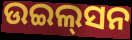
ଉଇଲ୍‌ସନ